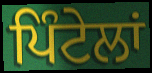
ਪਿੰਟੇਲਾਂ